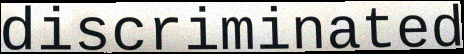
discriminated